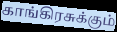
காங்கிரசுக்கும்